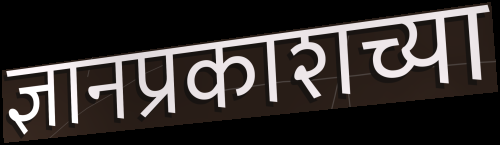
ज्ञानप्रकाशच्या